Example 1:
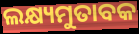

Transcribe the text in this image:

ଲକ୍ଷ୍ୟମୁତାବକ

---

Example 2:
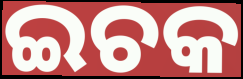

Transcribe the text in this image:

ଇଚକ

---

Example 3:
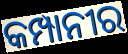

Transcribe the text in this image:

କମ୍ପାନୀର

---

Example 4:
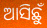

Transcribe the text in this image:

ଆସିଛୁଁ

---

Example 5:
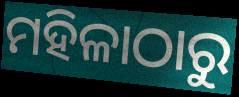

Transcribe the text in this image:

ମହିଳାଠାରୁ